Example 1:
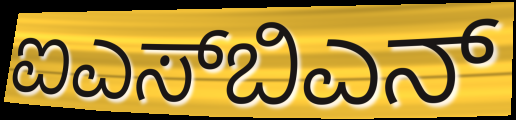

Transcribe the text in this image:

ಐಎಸ್‌ಬಿಎನ್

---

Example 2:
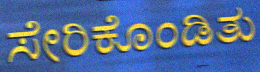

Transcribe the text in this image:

ಸೇರಿಕೊಂಡಿತು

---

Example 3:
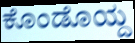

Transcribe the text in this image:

ಕೊಂಡೊಯ್ದ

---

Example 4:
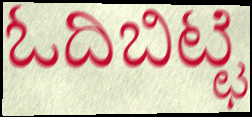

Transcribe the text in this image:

ಓದಿಬಿಟ್ಟೆ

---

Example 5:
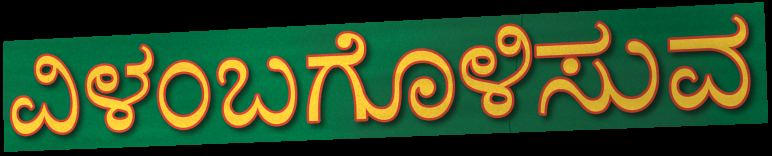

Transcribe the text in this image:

ವಿಳಂಬಗೊಳಿಸುವ